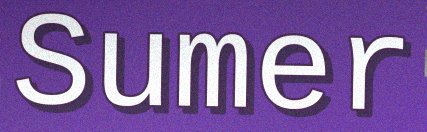
Sumer